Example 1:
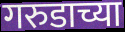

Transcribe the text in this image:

गरुडाच्या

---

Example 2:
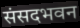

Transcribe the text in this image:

संसदभवन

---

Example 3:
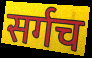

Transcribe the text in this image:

सर्गच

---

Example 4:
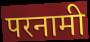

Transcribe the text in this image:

परनामी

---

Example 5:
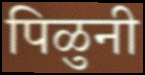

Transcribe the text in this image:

पिळुनी